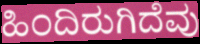
ಹಿಂದಿರುಗಿದೆವು